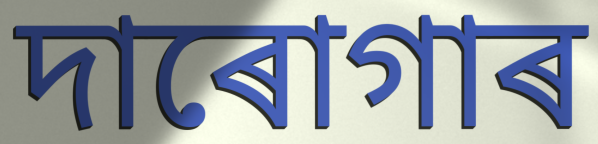
দাৰোগাৰ